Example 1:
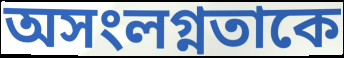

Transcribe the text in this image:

অসংলগ্নতাকে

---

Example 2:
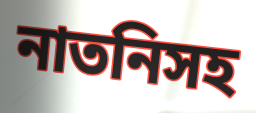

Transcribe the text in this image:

নাতনিসহ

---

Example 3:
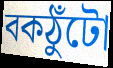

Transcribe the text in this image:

বকঠুঁটো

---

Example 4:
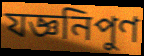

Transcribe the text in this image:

যজ্ঞনিপুণ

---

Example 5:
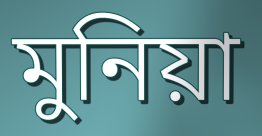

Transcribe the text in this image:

মুনিয়া